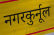
नगरकुर्नूल